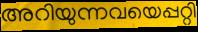
അറിയുന്നവയെപ്പറ്റി